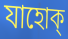
যাহোক্